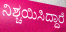
ನಿಶ್ಚಯಿಸಿದ್ದಾರೆ